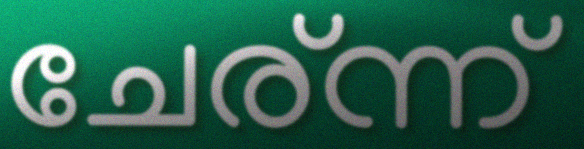
ചേര്ന്ന്